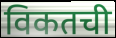
विकतची